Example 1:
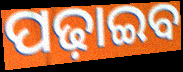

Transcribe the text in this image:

ପଢ଼ାଇବ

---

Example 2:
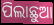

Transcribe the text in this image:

ପିଲାଛୁଆ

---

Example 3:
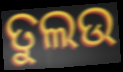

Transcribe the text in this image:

ତୁଲଉ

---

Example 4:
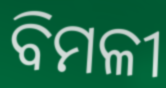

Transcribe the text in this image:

ବିମଳୀ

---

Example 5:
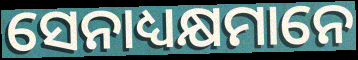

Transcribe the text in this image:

ସେନାଧ୍ୟକ୍ଷମାନେ